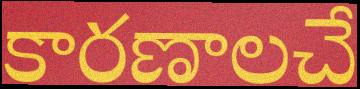
కారణాలచే